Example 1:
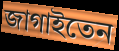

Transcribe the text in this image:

জাগাইতেন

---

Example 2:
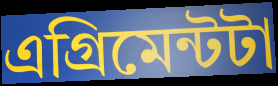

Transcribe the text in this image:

এগ্রিমেন্টটা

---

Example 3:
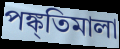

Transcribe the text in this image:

পঙ্ক্তিমালা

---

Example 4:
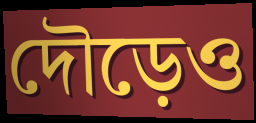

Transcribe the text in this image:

দৌড়েও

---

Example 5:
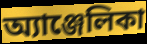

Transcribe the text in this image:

অ্যাঞ্জেলিকা